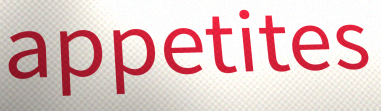
appetites